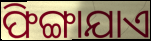
ଫିଙ୍ଗାଯାଏ